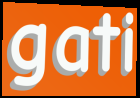
gati